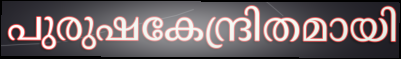
പുരുഷകേന്ദ്രിതമായി